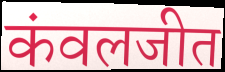
कंवलजीत